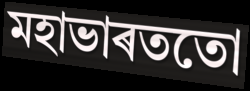
মহাভাৰততো